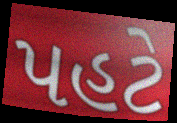
પહટે